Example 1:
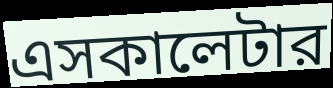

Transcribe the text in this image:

এসকালেটার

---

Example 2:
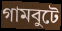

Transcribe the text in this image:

গামবুটে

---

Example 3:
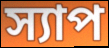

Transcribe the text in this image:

স্যাপ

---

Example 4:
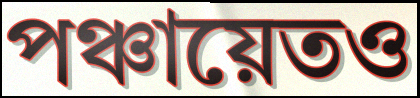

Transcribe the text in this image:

পঞ্চায়েতও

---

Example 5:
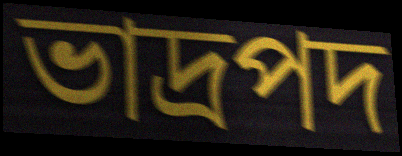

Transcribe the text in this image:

ভাদ্রপদ